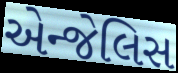
એન્જેલિસ